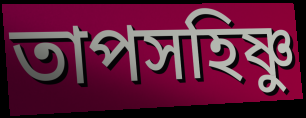
তাপসহিষ্ণু